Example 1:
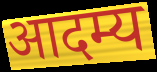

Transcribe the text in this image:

आदम्य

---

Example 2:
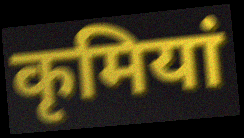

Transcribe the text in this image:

कृमियां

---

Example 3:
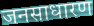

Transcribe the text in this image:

जनसाधारण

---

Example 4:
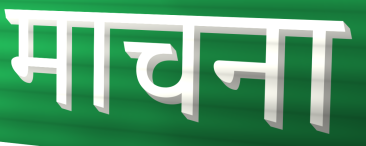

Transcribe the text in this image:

माचना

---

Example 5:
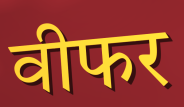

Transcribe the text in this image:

वीफर